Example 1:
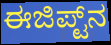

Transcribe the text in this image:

ಈಜಿಪ್ಟ್‌ನ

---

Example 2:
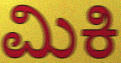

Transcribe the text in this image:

ಮಿಕಿ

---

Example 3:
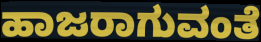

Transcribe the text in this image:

ಹಾಜರಾಗುವಂತೆ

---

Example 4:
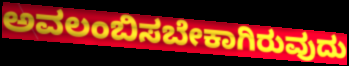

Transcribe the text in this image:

ಅವಲಂಬಿಸಬೇಕಾಗಿರುವುದು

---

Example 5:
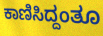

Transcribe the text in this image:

ಕಾಣಿಸಿದ್ದಂತೂ